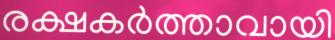
രക്ഷകർത്താവായി